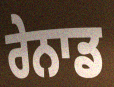
ਰੇਨਾਡ